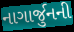
નાગાર્જુનની